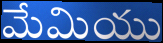
మేమియు